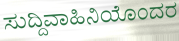
ಸುದ್ದಿವಾಹಿನಿಯೊಂದರ